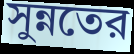
সুন্নতের